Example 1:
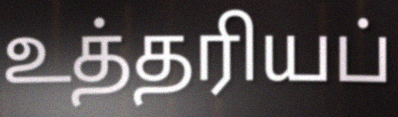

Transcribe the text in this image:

உத்தரியப்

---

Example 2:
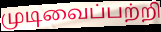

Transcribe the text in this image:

முடிவைப்பற்றி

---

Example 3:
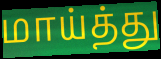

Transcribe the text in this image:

மாய்த்து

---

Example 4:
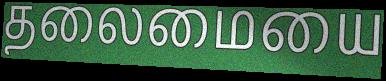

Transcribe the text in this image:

தலைமையை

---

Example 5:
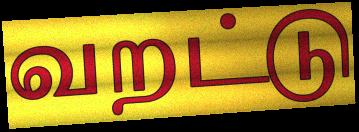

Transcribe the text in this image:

வறட்டு